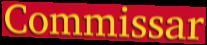
Commissar